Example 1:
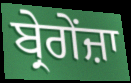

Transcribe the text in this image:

ਬ੍ਰੇਗੇਂਜ਼ਾ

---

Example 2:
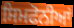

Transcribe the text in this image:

ਸਿਮਫੋਨੀਆਂ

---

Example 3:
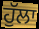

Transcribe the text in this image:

ਹੁੱਲਾ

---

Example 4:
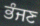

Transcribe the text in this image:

ਭੰਜਣ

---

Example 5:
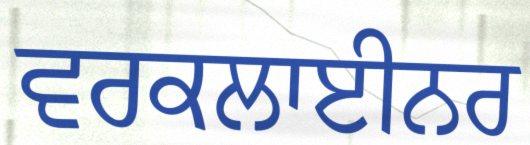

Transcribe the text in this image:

ਵਰਕਲਾਈਨਰ